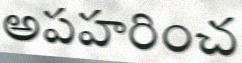
అపహరించ